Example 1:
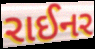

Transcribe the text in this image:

રાઈનર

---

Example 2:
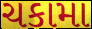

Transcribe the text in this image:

ચકામા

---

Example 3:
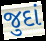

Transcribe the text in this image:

જુદાં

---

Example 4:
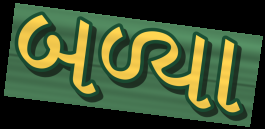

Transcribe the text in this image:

બળ્યા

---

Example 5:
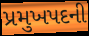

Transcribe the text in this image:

પ્રમુખપદની